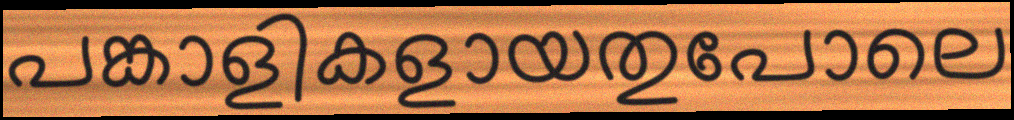
പങ്കാളികളായതുപോലെ